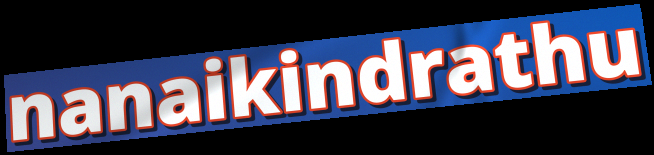
nanaikindrathu